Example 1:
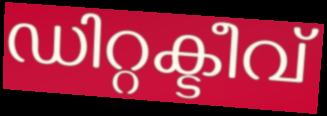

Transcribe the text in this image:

ഡിറ്റക്ടീവ്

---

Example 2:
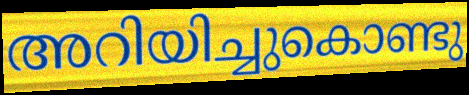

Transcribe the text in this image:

അറിയിച്ചുകൊണ്ടു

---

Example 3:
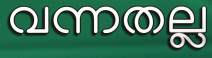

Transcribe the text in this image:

വന്നതല്ല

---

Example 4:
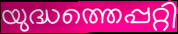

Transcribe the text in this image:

യുദ്ധത്തെപ്പറ്റി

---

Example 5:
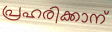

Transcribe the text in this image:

പ്രഹരിക്കാന്